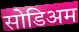
सोडिअम